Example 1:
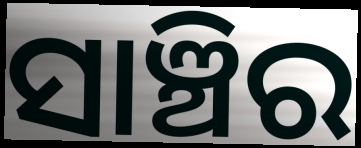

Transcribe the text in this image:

ସାଞ୍ଚିର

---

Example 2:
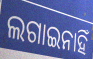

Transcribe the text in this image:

ଲଗାଇନାହିଁ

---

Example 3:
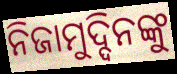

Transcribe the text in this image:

ନିଜାମୁଦ୍ଦିନଙ୍କୁ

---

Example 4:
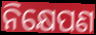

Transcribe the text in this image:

ନିକ୍ଷେପଣ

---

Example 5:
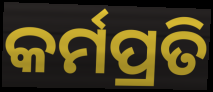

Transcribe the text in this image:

କର୍ମପ୍ରତି